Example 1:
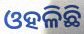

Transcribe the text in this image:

ଓହଳିଛି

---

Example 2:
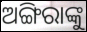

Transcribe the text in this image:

ଅଙ୍ଗିରାଙ୍କୁ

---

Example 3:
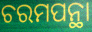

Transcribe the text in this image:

ଚରମପନ୍ଥା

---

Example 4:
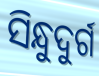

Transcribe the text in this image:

ସିନ୍ଧୁଦୁର୍ଗ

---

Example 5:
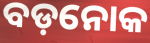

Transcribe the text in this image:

ବଡ଼ନୋକ